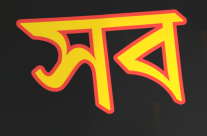
সব